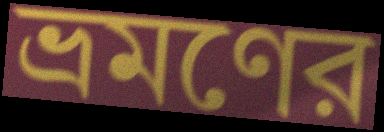
ভ্রমণের